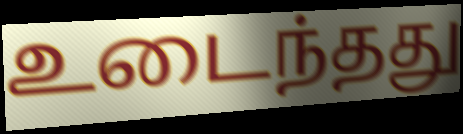
உடைந்தது